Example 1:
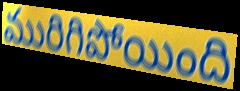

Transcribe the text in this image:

మురిగిపోయింది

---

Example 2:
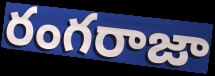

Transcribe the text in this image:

రంగరాజా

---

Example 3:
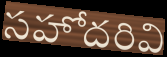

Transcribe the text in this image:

సహోదరివి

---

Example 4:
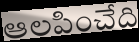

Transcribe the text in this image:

ఆలపించేది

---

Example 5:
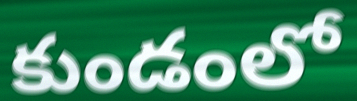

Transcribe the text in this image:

కుండంలో